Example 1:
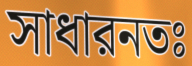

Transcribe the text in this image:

সাধারনতঃ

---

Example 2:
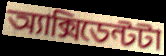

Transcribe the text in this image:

অ্যাক্সিডেন্টটা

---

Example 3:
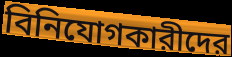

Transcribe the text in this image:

বিনিযোগকারীদের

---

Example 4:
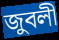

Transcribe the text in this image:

জুবলী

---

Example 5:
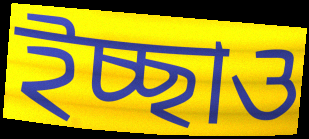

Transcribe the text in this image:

ইচ্ছাও